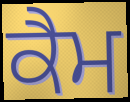
ਕੈਮ